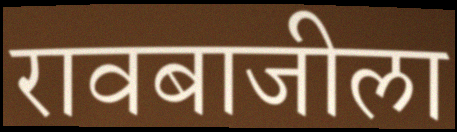
रावबाजीला